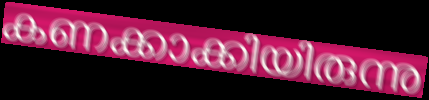
കണക്കാക്കിയിരുന്നു